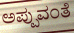
ಅಪ್ಪುವಂತೆ